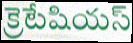
క్రెటేషియస్